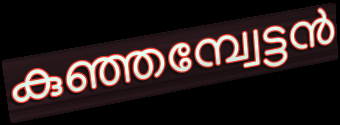
കുഞ്ഞമ്പ്വേട്ടൻ